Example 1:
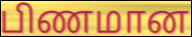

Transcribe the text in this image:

பிணமான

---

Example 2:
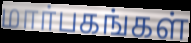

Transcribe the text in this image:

மார்பகங்கள்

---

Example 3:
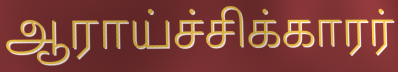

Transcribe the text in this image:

ஆராய்ச்சிக்காரர்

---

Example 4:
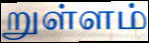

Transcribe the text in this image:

றுள்ளம்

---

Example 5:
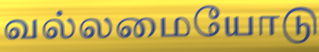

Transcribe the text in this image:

வல்லமையோடு